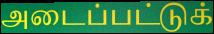
அடைப்பட்டுக்